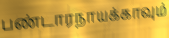
பண்டாரநாயக்காவும்